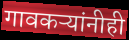
गावकऱ्यांनीही